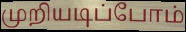
முறியடிப்போம்